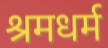
श्रमधर्म